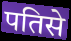
पतिसे